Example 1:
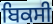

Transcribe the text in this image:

ਬਿਕਸੀ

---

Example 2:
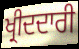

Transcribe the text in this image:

ਖ੍ਰੀਦਦਾਰੀ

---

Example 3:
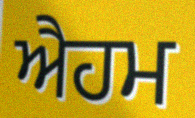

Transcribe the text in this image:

ਐਹਮ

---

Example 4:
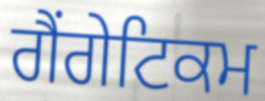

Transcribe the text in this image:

ਗੈਂਗੇਟਿਕਮ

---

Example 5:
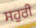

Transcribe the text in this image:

ਸਹੁਰੀ